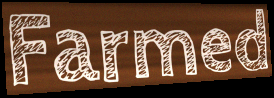
Farmed